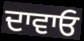
ਦਾਵਾਓ